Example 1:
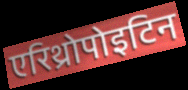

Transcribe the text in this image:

एरिथ्रोपोइटिन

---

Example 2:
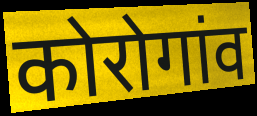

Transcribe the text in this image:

कोरोगांव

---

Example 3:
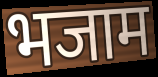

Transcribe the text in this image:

भजाम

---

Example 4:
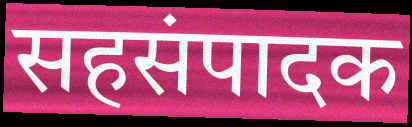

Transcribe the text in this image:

सहसंपादक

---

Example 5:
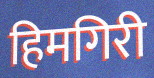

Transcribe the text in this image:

हिमगिरी